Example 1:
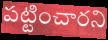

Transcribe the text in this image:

పట్టించారని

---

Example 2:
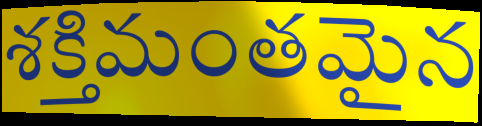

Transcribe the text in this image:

శక్తిమంతమైన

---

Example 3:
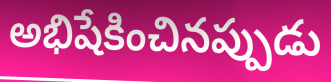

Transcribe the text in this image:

అభిషేకించినప్పుడు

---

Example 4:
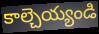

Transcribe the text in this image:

కాల్చెయ్యండి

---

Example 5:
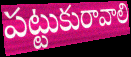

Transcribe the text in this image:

పట్టుకురావాలి